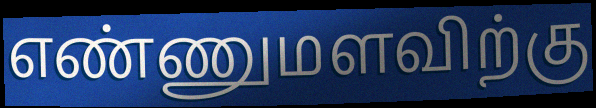
எண்ணுமளவிற்கு